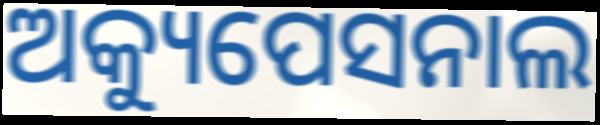
ଅକ୍ୟୁପେସନାଲ